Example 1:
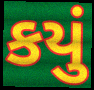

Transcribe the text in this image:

કયું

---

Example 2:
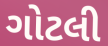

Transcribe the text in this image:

ગોટલી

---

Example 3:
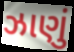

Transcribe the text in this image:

ઝાણું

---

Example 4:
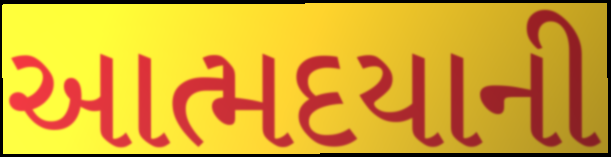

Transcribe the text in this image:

આત્મદયાની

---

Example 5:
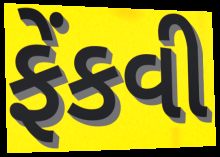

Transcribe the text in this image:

ફેંકવી